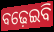
ବଢ଼େଇବି